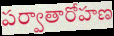
పర్వాతారోహణ